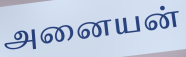
அனையன்